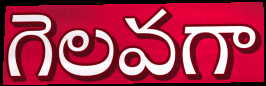
గెలవగా